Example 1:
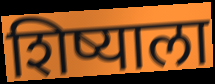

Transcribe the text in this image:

शिष्याला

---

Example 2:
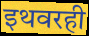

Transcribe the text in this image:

इथवरही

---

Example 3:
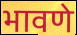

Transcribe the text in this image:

भावणे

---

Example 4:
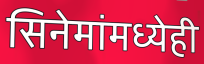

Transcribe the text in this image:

सिनेमांमध्येही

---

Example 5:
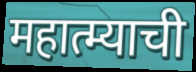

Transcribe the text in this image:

महात्म्याची